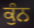
ਕੁੰਨ